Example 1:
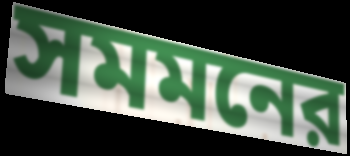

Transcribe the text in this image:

সমমনের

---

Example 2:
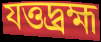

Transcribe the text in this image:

যত্তদ্ব্রহ্ম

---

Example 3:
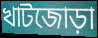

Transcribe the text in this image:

খাটজোড়া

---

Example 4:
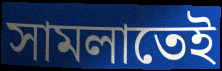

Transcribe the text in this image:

সামলাতেই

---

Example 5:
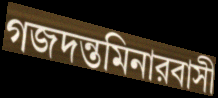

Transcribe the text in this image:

গজদন্তমিনারবাসী